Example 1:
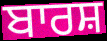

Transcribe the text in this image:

ਬਾਰਸ਼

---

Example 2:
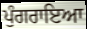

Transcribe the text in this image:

ਪੁੰਗਰਾਇਆ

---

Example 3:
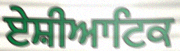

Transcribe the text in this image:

ਏਸ਼ੀਆਟਿਕ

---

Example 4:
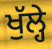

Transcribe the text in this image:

ਖੁੱਲ੍ਹੇ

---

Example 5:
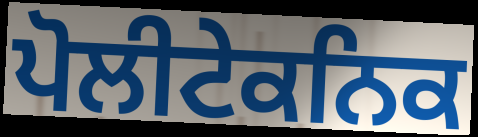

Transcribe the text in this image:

ਪੋਲੀਟੇਕਨਿਕ